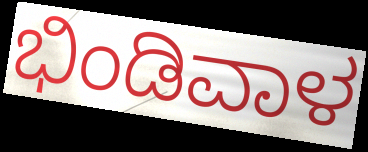
ಭಿಂಡಿವಾಳ